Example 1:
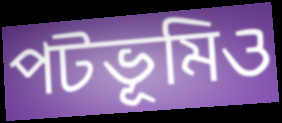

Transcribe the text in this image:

পটভূমিও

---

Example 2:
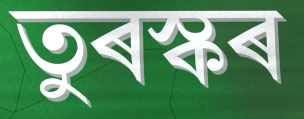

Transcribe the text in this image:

তুৰস্কৰ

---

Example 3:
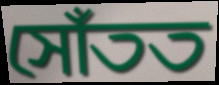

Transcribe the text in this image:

সোঁতত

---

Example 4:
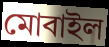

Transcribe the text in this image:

মোবাইল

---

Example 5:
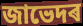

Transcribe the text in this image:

জাভেদৰ